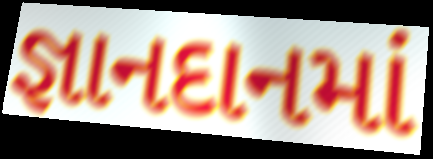
જ્ઞાનદાનમાં